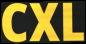
CXL